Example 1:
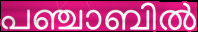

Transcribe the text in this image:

പഞ്ചാബിൽ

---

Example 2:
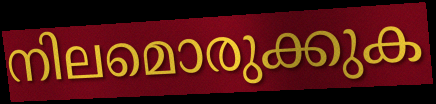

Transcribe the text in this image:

നിലമൊരുക്കുക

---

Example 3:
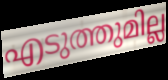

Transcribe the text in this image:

എടുത്തുമില്ല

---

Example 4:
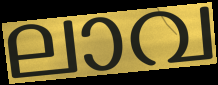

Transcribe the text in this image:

ലാവ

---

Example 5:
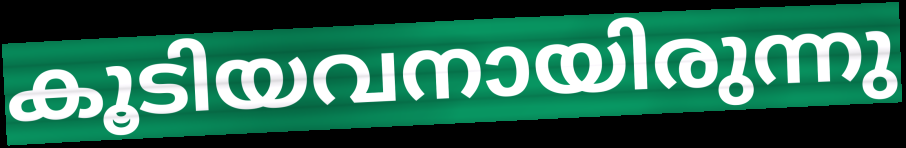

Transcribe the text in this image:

കൂടിയവനായിരുന്നു